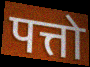
पत्तो